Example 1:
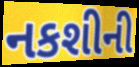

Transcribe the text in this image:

નકશીની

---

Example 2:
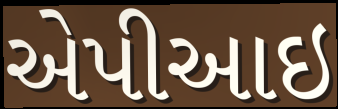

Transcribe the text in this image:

એપીઆઇ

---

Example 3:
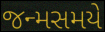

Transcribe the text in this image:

જન્મસમયે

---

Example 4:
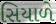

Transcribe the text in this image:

સિયાળે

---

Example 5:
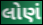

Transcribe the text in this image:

લોણં